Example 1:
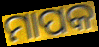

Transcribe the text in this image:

ମାପକ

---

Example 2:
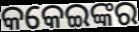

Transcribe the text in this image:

କକେଇଙ୍କର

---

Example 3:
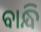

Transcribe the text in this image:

ବାନ୍ଧି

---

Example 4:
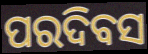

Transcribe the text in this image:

ପରଦିବସ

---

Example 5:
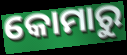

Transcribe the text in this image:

କୋମାରୁ